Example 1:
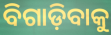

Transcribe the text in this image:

ବିଗାଡ଼ିବାକୁ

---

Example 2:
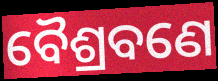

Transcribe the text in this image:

ବୈଶ୍ରବଣେ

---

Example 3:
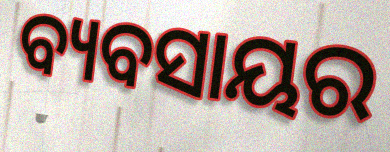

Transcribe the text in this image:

ବ୍ୟବସାୟର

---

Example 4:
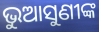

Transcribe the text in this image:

ଭୁଆସୁଣୀଙ୍କ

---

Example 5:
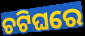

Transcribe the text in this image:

ଚଟିଘରେ